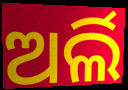
ଅର୍ଲି